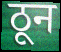
ठून